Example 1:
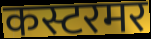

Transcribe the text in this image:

कस्टरमर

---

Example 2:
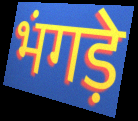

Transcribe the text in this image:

भंगड़े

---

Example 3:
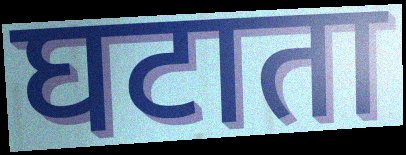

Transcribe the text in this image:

घटाता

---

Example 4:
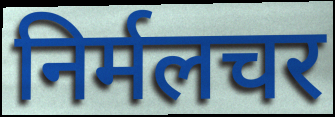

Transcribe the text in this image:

निर्मलचर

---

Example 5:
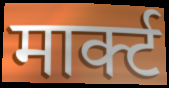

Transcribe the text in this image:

मार्क्ट